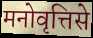
मनोवृत्तिसे